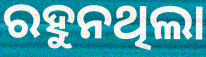
ରହୁନଥିଲା